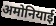
अमोनियाई